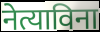
नेत्याविना